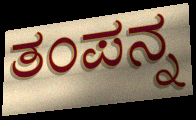
ತಂಪನ್ನ